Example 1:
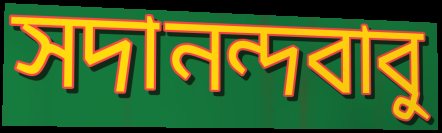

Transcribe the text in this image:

সদানন্দবাবু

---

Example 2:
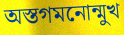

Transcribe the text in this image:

অস্তগমনোন্মুখ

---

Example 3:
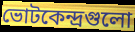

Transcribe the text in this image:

ভোটকেন্দ্রগুলো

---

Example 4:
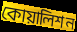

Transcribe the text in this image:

কোয়ালিশন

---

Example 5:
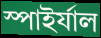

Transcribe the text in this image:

স্পাইর্যাল